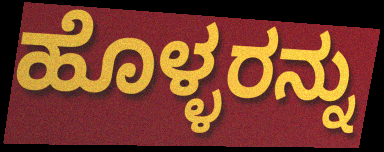
ಹೊಳ್ಳರನ್ನು